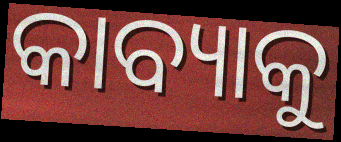
କାବ୍ୟାକୁ